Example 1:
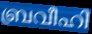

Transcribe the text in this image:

ബ്രവീഹി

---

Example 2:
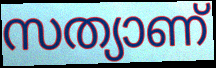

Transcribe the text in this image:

സത്യാണ്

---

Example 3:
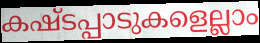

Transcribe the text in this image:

കഷ്ടപ്പാടുകളെല്ലാം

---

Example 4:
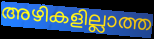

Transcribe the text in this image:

അഴികളില്ലാത്ത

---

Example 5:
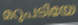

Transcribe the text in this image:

മറുപടിയേ